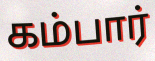
கம்பார்